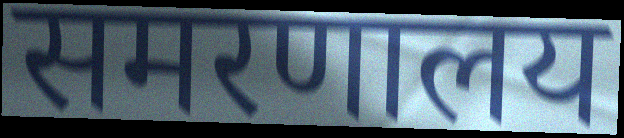
समरणालय